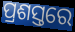
ପ୍ରଶସ୍ତରେ